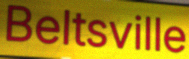
Beltsville